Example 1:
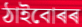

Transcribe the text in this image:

ঠাইবোৰৰ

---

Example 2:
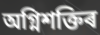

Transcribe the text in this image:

অগ্নিশক্তিৰ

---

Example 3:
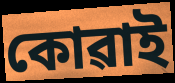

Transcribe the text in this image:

কোৱাই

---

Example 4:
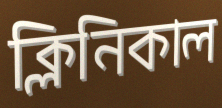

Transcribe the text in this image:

ক্লিনিকাল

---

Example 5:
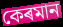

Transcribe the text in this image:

কেৰমান